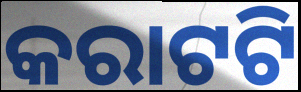
କରାଟଟି